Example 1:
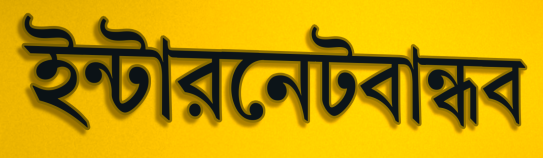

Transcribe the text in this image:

ইন্টারনেটবান্ধব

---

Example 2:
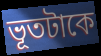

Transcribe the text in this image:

ভূতটাকে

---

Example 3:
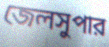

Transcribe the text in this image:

জেলসুপার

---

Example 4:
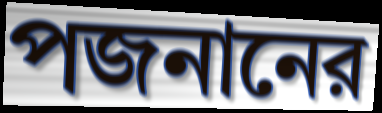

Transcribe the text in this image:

পজনানের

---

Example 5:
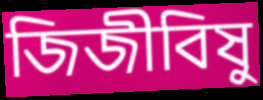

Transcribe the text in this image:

জিজীবিষু